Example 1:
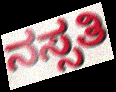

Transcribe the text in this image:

ನಸ್ಸತಿ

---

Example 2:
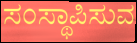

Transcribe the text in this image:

ಸಂಸ್ಥಾಪಿಸುವ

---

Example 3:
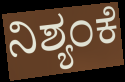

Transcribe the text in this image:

ನಿಶ್ಯಂಕೆ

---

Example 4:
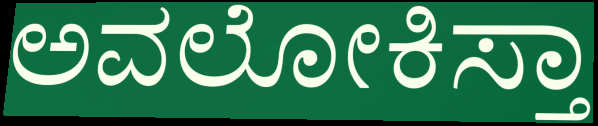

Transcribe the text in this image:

ಅವಲೋಕಿಸ್ತಾ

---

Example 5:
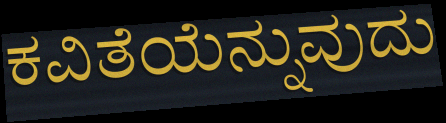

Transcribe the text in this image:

ಕವಿತೆಯೆನ್ನುವುದು